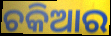
ଚକିଆର